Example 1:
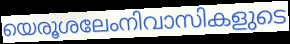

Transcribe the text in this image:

യെരൂശലേംനിവാസികളുടെ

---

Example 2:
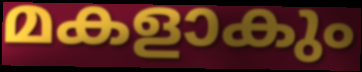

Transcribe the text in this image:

മകളാകും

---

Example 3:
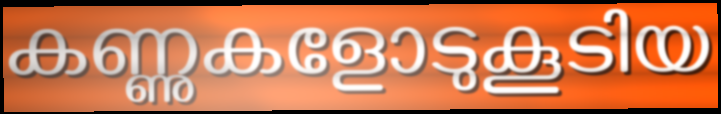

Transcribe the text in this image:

കണ്ണുകളോടുകൂടിയ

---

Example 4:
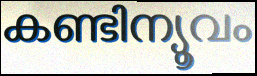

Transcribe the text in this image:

കണ്ടിന്യൂവം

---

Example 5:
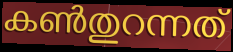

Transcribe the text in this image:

കൺതുറന്നത്